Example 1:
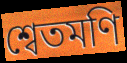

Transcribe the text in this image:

শ্বেতমণি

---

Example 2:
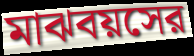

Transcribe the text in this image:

মাঝবয়সের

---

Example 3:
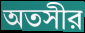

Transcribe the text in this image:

অতসীর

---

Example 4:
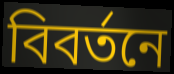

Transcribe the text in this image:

বিবর্তনে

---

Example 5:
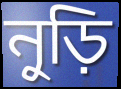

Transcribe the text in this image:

নুড়ি